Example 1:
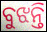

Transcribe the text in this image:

ବୁଝନ୍ତି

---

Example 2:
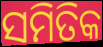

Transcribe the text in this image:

ସମିତିକ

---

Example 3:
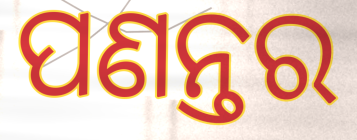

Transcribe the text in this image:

ପଣନ୍ତର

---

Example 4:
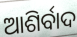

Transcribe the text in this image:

ଆଶିର୍ବାଦ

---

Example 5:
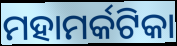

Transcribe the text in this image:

ମହାମର୍କଟିକା